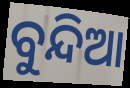
ବୁନ୍ଦିଆ